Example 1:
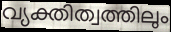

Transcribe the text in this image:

വ്യക്തിത്വത്തിലും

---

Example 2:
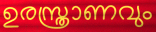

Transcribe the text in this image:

ഉരസ്ത്രാണവും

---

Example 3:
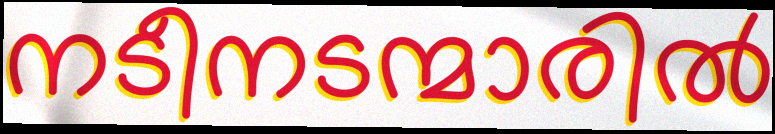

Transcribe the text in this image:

നടീനടന്മാരിൽ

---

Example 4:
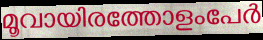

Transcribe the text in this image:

മൂവായിരത്തോളംപേർ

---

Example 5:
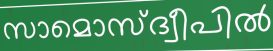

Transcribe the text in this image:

സാമൊസ്ദ്വീപിൽ